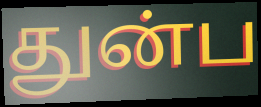
துன்ப